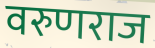
वरुणराज